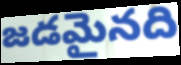
జడమైనది